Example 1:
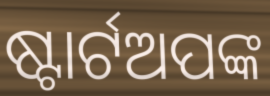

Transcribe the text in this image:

ଷ୍ଟାର୍ଟଅପଙ୍କ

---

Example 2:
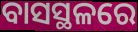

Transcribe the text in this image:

ବାସସ୍ଥଳରେ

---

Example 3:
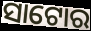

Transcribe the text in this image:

ସାଟୋର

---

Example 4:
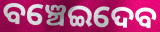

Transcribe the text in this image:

ବଞ୍ଚେଇଦେବ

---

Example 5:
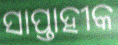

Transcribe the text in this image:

ସାପ୍ତାହୀକ